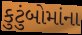
કુટુંબોમાંના